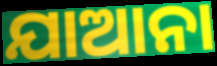
ଯାଆନା